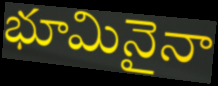
భూమినైనా